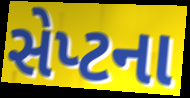
સેપ્ટના